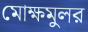
মোক্ষমুলর